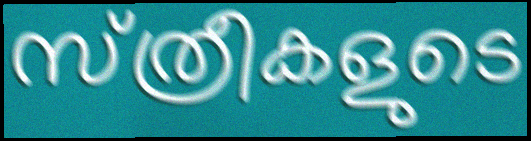
സ്‌ത്രീകളുടെ